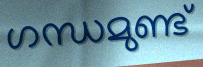
ഗന്ധമുണ്ട്